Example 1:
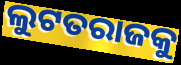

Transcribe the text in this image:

ଲୁଟତରାଜକୁ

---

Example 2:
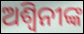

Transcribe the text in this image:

ଅଶ୍ୱିନୀଙ୍କ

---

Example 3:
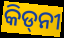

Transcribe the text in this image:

କିଡ୍‍ନୀ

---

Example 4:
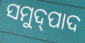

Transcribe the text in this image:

ସମୁଦ୍‌ପାଦ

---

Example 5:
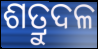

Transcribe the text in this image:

ଶତ୍ରୁଦଳ